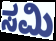
ಸಮಿ